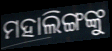
ମହାଲିଙ୍ଗଙ୍କୁ